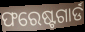
ଫରେଷ୍ଟଗାର୍ଡ